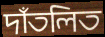
দাঁতলিত